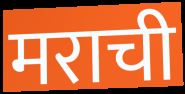
मराची